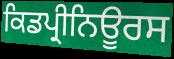
ਕਿਡਪ੍ਰੀਨਿਊਰਸ